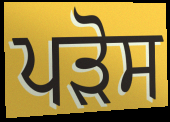
ਪੜੋਸ